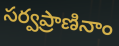
సర్వప్రాణినాం